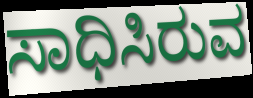
ಸಾಧಿಸಿರುವ